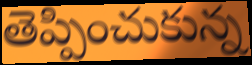
తెప్పించుకున్న